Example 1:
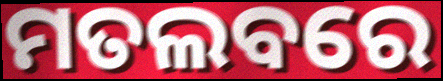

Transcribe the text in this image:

ମତଲବରେ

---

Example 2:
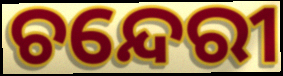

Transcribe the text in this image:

ଚନ୍ଦେରୀ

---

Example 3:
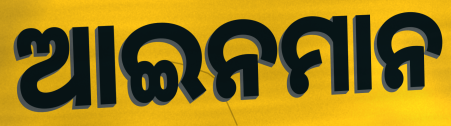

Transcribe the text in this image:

ଆଇନମାନ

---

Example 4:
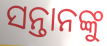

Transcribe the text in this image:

ସନ୍ତାନଙ୍କୁ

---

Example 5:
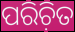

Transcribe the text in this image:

ପରିଚ଼ିତ